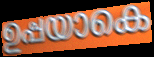
ഉപ്പയാകെ